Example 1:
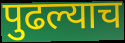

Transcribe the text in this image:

पुढल्याच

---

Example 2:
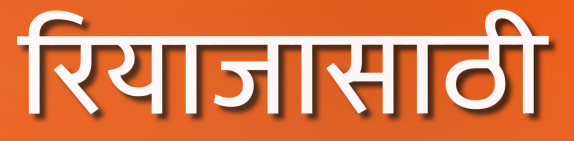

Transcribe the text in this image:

रियाजासाठी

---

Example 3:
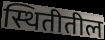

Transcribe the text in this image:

स्थितीतील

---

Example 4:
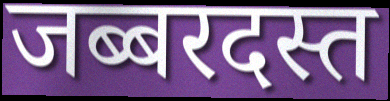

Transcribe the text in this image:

जब्बरदस्त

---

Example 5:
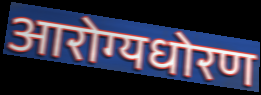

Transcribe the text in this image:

आरोग्यधोरण